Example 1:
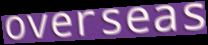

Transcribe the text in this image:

overseas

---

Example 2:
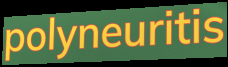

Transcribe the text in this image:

polyneuritis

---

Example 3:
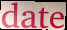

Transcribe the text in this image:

date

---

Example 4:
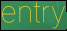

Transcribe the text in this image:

entry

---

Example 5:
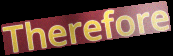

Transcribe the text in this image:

Therefore